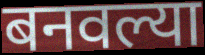
बनवल्या